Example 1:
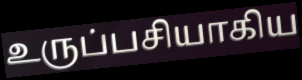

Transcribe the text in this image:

உருப்பசியாகிய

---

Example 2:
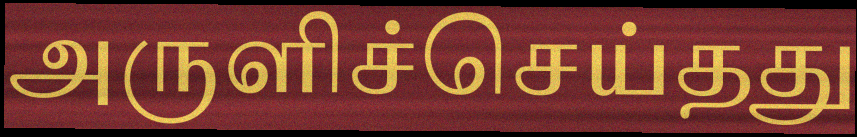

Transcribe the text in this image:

அருளிச்செய்தது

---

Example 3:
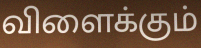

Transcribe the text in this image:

விளைக்கும்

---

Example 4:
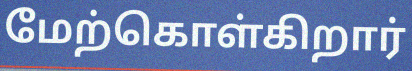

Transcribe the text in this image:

மேற்கொள்கிறார்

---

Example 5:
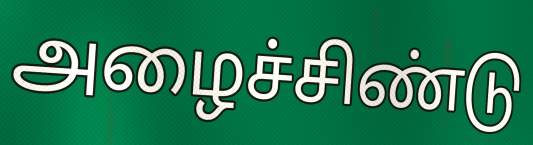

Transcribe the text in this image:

அழைச்சிண்டு